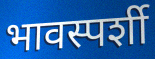
भावस्पर्शी